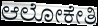
ಆಲೋಕೇತಿ